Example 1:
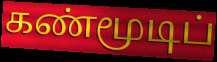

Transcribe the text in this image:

கண்மூடிப்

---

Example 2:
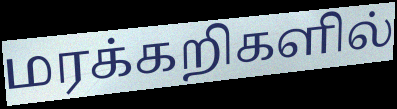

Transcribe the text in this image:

மரக்கறிகளில்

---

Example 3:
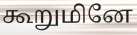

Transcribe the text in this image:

கூறுமினே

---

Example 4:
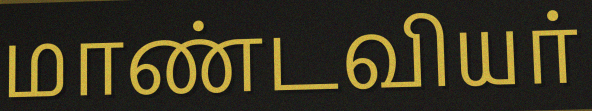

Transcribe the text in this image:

மாண்டவியர்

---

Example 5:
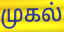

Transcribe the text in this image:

முகல்